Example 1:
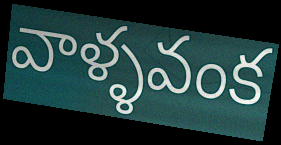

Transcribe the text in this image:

వాళ్ళవంక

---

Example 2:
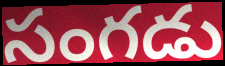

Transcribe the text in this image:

సంగడు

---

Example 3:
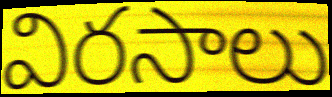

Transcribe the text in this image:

విరసాలు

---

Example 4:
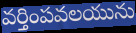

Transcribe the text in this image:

వర్తింపవలయును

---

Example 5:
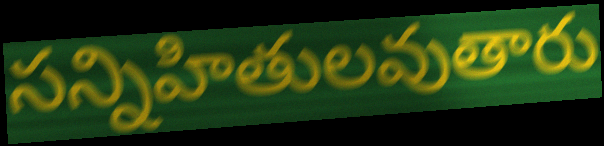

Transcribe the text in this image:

సన్నిహితులవుతారు